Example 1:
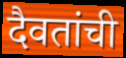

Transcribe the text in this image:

दैवतांची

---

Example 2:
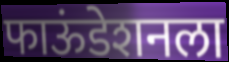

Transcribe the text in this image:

फाऊंडेशनला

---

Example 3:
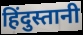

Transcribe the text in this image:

हिंदुस्तानी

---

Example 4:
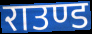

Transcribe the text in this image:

राउण्ड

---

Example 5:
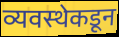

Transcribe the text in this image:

व्यवस्थेकडून